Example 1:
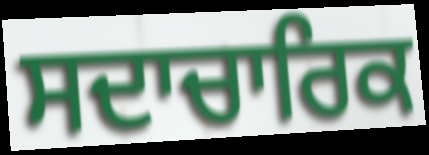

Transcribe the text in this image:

ਸਦਾਚਾਰਿਕ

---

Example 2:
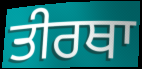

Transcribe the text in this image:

ਤੀਰਥਾ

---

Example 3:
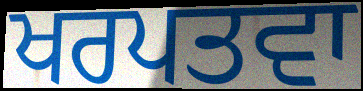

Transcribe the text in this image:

ਖਰਪਤਵਾ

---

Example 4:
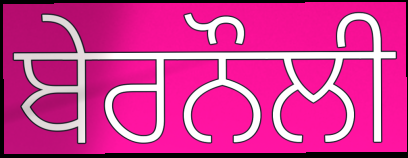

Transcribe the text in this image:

ਬੇਰਨੌਲੀ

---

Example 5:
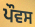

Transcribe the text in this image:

ਪੌਵਸ